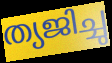
ത്യജിച്ചു